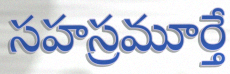
సహస్రమూర్తే